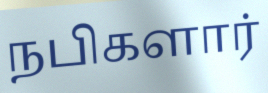
நபிகளார்